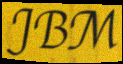
JBM